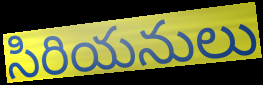
సిరియనులు